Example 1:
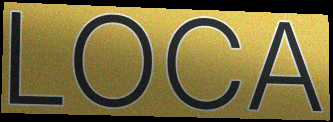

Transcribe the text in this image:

LOCA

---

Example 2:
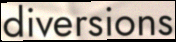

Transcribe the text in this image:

diversions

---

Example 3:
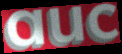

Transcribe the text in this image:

auc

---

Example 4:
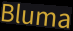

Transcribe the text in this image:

Bluma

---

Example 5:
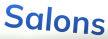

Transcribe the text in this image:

Salons